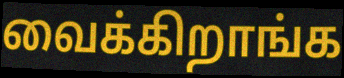
வைக்கிறாங்க